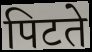
पिटते